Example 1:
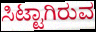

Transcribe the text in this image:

ಸಿಟ್ಟಾಗಿರುವ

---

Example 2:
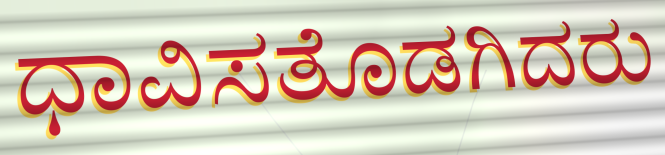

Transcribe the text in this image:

ಧಾವಿಸತೊಡಗಿದರು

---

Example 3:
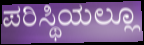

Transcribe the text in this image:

ಪರಿಸ್ಥಿಯಲ್ಲೂ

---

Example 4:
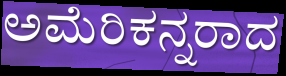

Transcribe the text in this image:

ಅಮೆರಿಕನ್ನರಾದ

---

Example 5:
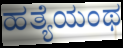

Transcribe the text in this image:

ಹತ್ಯೆಯಂಥ